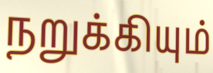
நறுக்கியும்